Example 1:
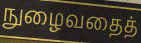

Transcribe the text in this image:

நுழைவதைத்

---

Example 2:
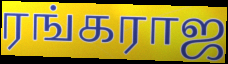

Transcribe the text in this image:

ரங்கராஜ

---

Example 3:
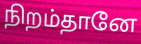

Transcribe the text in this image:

நிறம்தானே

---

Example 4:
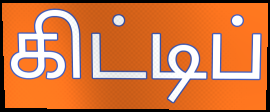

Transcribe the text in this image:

கிட்டிப்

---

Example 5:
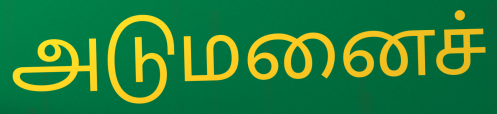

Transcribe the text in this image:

அடுமனைச்